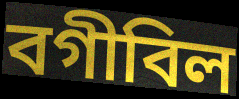
বগীবিল